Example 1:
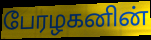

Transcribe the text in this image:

பேரழகனின்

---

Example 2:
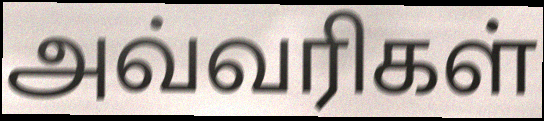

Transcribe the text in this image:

அவ்வரிகள்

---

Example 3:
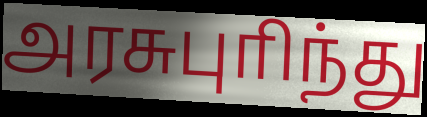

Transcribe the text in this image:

அரசுபுரிந்து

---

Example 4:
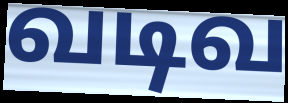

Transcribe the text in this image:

வடிவ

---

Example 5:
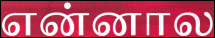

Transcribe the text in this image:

என்னால